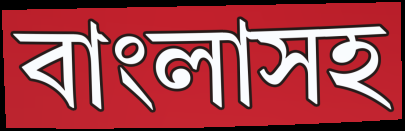
বাংলাসহ